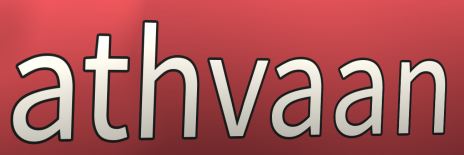
athvaan